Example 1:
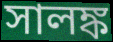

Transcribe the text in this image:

সালঙ্ক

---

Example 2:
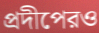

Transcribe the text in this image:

প্রদীপেরও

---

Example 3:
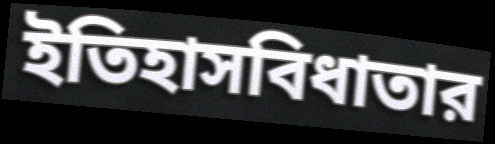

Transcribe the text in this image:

ইতিহাসবিধাতার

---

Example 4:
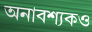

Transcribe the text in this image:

অনাবশ্যকও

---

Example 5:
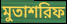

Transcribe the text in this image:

মুতাশরিফ